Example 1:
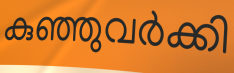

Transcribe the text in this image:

കുഞ്ഞുവർക്കി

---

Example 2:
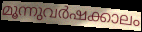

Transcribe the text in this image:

മൂന്നുവർഷക്കാലം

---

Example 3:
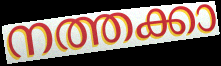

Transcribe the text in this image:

നത്തക്കാ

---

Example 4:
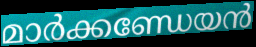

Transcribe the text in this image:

മാർക്കണ്ഡേയൻ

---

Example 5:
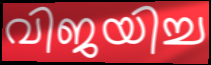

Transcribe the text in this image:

വിജയിച്ച